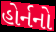
હોર્નનો